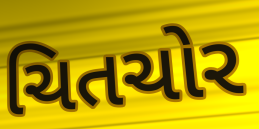
ચિતચોર